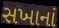
સખાનાં